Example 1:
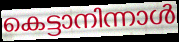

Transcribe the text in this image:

കെട്ടാനിന്നാൾ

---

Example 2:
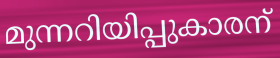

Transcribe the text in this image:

മുന്നറിയിപ്പുകാരന്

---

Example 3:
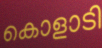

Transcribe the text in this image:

കൊളാടി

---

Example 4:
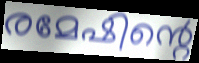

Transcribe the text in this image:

രമേഷിന്റെ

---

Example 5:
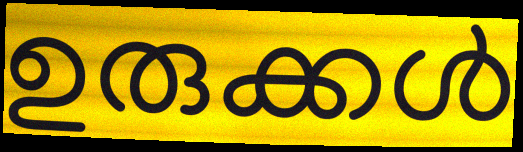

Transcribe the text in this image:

ഉരുക്കൾ